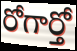
రోగార్తో